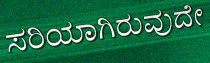
ಸರಿಯಾಗಿರುವುದೇ